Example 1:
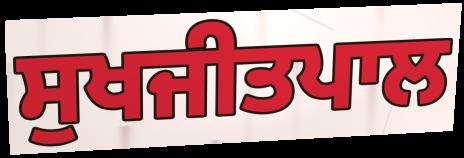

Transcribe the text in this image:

ਸੁਖਜੀਤਪਾਲ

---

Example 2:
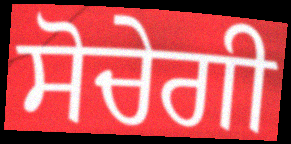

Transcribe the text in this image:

ਸੋਚੇਗੀ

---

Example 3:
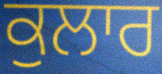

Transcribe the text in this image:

ਕੁਲਾਰ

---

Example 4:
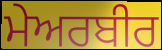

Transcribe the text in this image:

ਮੇਅਰਬੀਰ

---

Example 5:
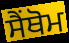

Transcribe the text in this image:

ਸੈਂਥੋਮ